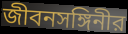
জীবনসঙ্গিনীর